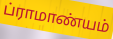
ப்ராமாண்யம்